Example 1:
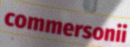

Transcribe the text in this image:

commersonii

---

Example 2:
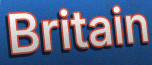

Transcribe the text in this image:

Britain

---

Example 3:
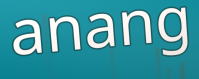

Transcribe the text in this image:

anang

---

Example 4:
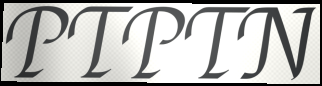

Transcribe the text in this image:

PTPTN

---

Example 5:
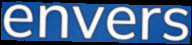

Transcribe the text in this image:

envers